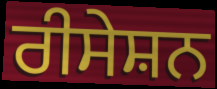
ਰੀਸੇਸ਼ਨ